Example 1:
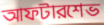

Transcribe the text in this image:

আফটারশেভ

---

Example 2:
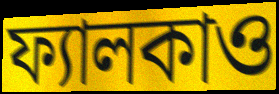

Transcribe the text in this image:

ফ্যালকাও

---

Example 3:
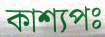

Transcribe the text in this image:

কাশ্যপঃ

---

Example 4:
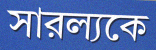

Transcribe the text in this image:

সারল্যকে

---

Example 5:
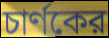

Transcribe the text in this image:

চার্ণকের